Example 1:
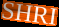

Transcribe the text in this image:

SHRI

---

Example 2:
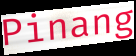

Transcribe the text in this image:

Pinang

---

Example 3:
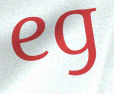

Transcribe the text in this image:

eg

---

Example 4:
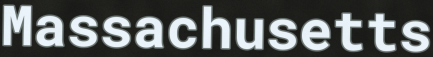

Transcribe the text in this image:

Massachusetts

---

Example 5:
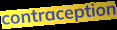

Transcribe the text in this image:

contraception